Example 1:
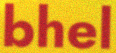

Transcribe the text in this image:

bhel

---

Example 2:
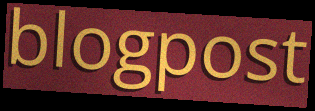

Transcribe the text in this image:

blogpost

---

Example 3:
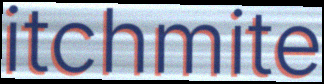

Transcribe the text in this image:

itchmite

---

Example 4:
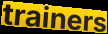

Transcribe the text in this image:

trainers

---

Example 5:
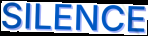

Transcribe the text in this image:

SILENCE